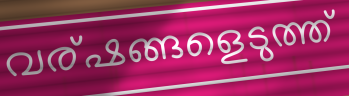
വര്ഷങ്ങളെടുത്ത്